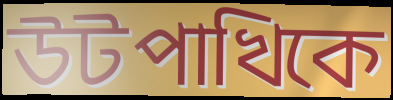
উটপাখিকে